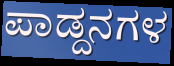
ಪಾಡ್ದನಗಳ